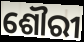
ଶୌରୀ